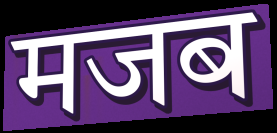
मजब